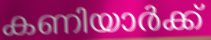
കണിയാർക്ക്